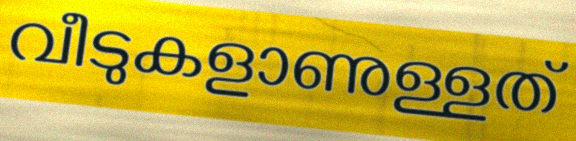
വീടുകളാണുള്ളത്